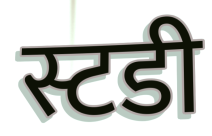
स्टडी